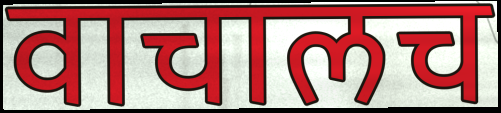
वाचालच